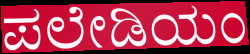
ಪಲೇಡಿಯಂ